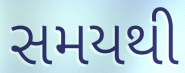
સમયથી